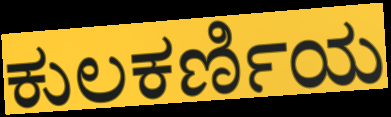
ಕುಲಕರ್ಣಿಯ